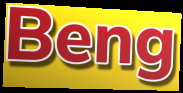
Beng